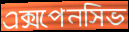
এক্সপেনসিভ